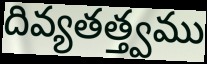
దివ్యతత్త్వము